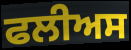
ਫਲੀਅਸ